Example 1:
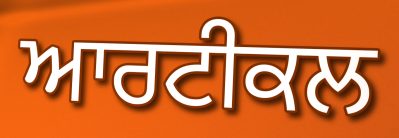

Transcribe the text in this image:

ਆਰਟੀਕਲ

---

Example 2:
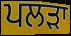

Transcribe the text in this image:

ਪਲੜਾ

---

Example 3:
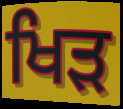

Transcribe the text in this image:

ਖਿੜ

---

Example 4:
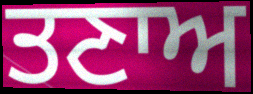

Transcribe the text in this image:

ਤਣਾਅ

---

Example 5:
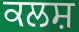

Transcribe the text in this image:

ਕਲਸ਼